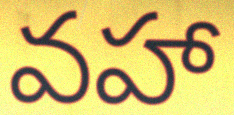
వహా